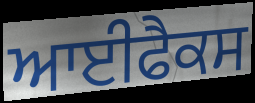
ਆਈਫੈਕਸ